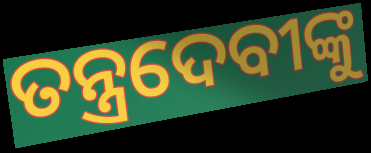
ତନ୍ତ୍ରଦେବୀଙ୍କୁ